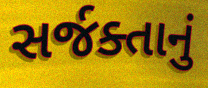
સર્જક્તાનું